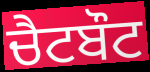
ਚੈਟਬੌਟ